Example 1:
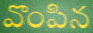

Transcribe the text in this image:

వొంపిన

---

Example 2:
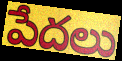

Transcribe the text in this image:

పేదలు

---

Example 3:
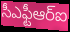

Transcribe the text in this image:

సీఎఫ్టీఆర్ఐ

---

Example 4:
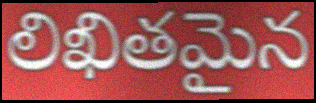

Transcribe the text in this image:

లిఖితమైన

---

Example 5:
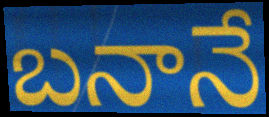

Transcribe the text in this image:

బనానే